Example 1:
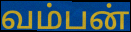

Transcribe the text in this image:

வம்பன்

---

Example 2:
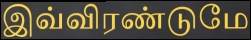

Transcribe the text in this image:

இவ்விரண்டுமே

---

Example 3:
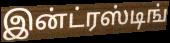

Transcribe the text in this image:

இன்ட்ரஸ்டிங்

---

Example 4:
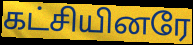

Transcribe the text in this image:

கட்சியினரே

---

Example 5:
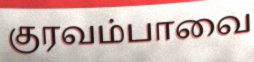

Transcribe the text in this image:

குரவம்பாவை